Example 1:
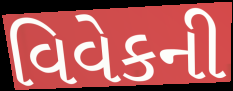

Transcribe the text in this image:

વિવેકની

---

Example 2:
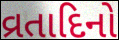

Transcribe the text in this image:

વ્રતાદિનો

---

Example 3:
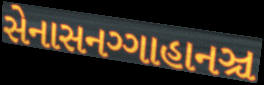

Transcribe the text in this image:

સેનાસનગ્ગાહાનઞ્ચ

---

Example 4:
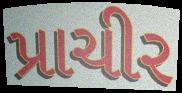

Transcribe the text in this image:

પ્રાચીર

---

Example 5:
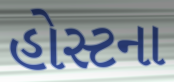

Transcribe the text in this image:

હોસ્ટના